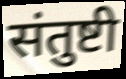
संतुष्टी